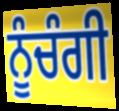
ਨੂੰਚੰਗੀ